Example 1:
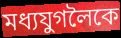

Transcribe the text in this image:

মধ্যযুগলৈকে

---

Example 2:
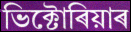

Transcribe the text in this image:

ভিক্টোৰিয়াৰ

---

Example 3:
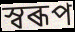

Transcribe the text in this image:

স্বৰূপ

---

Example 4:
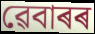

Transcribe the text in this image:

ৱেবাৰৰ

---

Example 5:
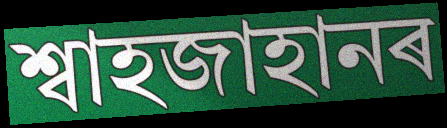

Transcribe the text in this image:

শ্বাহজাহানৰ